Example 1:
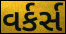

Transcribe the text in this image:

વર્કર્સ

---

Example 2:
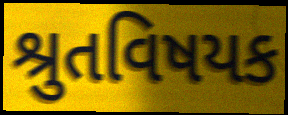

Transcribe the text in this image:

શ્રુતવિષયક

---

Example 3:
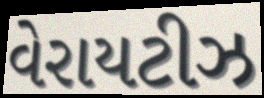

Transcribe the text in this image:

વેરાયટીઝ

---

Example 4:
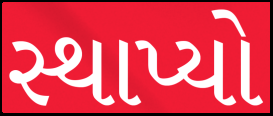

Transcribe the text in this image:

સ્થાપ્યો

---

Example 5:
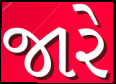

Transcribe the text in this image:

જારે